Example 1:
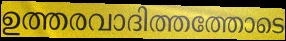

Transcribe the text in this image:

ഉത്തരവാദിത്തത്തോടെ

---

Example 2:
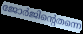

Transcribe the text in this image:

ജോർജിന്റെതന്നെ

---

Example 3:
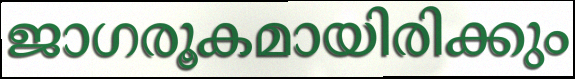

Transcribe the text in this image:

ജാഗരൂകമായിരിക്കും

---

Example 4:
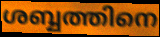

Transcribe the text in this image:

ശബ്ബത്തിനെ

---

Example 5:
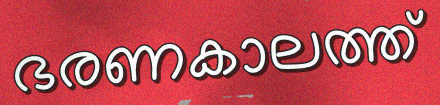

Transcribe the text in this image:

ഭരണകാലത്ത്